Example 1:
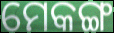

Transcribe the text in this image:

ମେକଙ୍ଗ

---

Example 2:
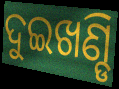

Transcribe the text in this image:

ଦୁଇଖଣ୍ଡି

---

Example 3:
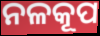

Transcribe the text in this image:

ନଳକୂପ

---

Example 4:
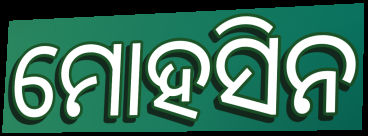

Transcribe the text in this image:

ମୋହସିନ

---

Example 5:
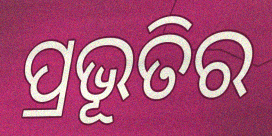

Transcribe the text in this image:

ପ୍ରଭୂତିର